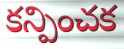
కన్పించక